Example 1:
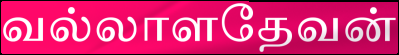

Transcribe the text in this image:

வல்லாளதேவன்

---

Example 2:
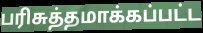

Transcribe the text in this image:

பரிசுத்தமாக்கப்பட்ட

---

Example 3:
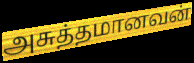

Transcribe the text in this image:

அசுத்தமானவன்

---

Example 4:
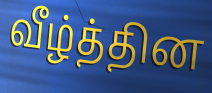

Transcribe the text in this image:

வீழ்த்தின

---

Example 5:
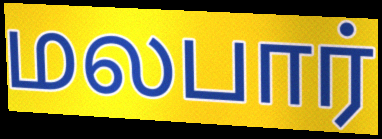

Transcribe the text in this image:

மலபார்